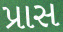
પ્રાસ